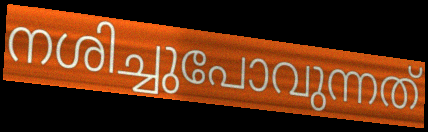
നശിച്ചുപോവുന്നത്